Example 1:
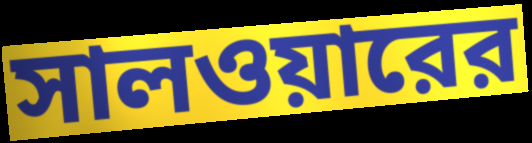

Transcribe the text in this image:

সালওয়ারের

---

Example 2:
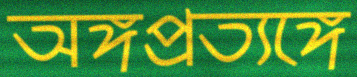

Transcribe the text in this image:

অঙ্গপ্রত্যঙ্গে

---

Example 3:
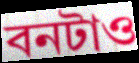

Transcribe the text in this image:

বনটাও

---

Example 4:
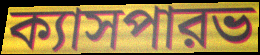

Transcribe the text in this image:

ক্যাসপারভ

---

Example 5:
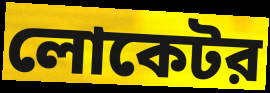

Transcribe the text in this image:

লোকেটর